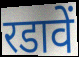
रडावें